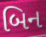
બિન